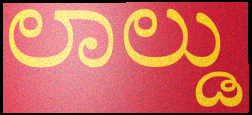
ಲಾಲ್ಡು